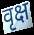
वृक्ष